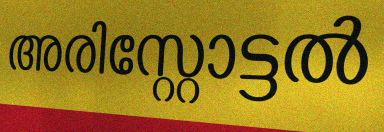
അരിസ്റ്റോട്ടൽ